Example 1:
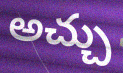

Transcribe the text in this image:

అచ్చు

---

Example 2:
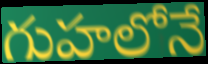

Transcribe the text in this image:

గుహలోనే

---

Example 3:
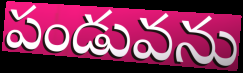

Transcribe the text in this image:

పండువను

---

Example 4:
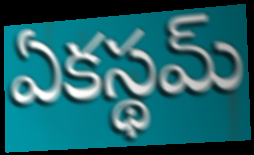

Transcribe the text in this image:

ఏకస్థమ్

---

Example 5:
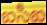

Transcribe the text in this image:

ఐసీఐ